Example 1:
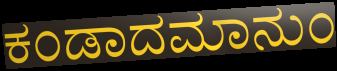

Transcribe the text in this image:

ಕಂಡಾದಮಾನುಂ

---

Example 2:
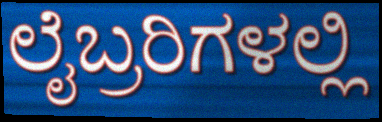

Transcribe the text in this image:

ಲೈಬ್ರರಿಗಳಲ್ಲಿ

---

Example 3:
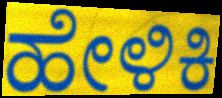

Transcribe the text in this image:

ಹೇಳಿಕಿ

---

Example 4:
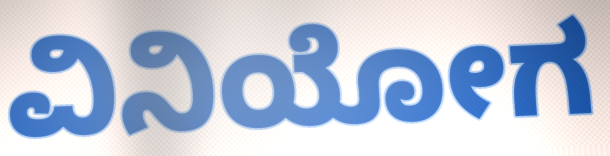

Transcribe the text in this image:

ವಿನಿಯೋಗ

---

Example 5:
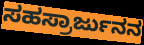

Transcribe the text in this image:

ಸಹಸ್ರಾರ್ಜುನನ